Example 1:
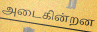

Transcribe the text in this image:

அடைகின்றன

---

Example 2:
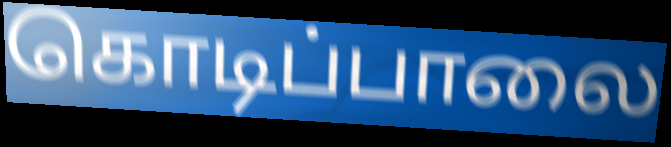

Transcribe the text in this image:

கொடிப்பாலை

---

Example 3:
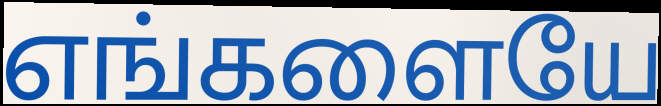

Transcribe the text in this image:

எங்களையே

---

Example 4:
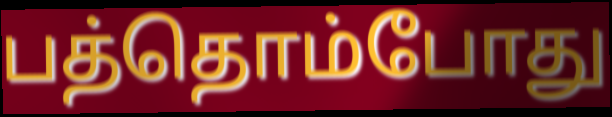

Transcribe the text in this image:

பத்தொம்போது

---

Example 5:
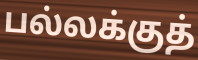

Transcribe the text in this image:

பல்லக்குத்